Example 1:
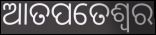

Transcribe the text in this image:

ଆତପତେଶ୍ୱର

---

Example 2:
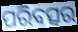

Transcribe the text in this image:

ପରିବତ୍ସର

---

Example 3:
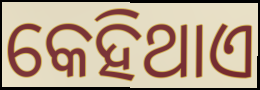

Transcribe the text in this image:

କେହିଥାଏ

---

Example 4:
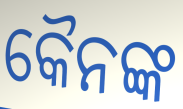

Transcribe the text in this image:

କୈନଙ୍କ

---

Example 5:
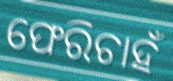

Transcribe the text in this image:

ଫେରିଚାହଁ